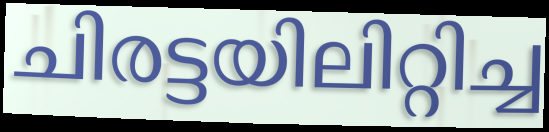
ചിരട്ടയിലിറ്റിച്ച